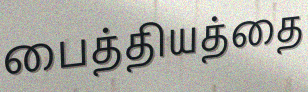
பைத்தியத்தை